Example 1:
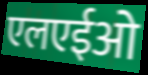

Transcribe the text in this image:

एलएईओ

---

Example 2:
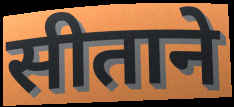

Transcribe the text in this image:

सीताने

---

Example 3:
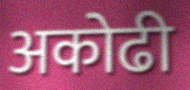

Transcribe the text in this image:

अकोढी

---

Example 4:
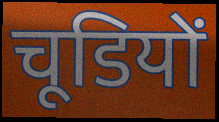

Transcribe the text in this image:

चूडियों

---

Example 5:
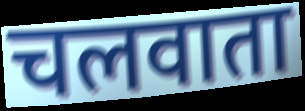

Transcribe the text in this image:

चलवाता